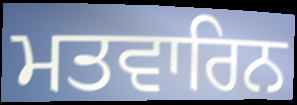
ਮਤਵਾਰਿਨ